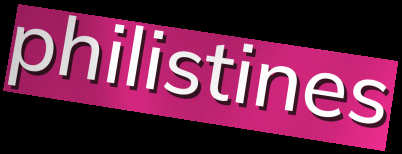
philistines